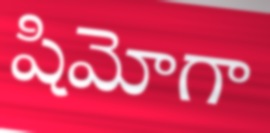
షిమోగా